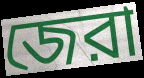
জেরা